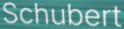
Schubert